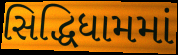
સિદ્ધિધામમાં